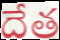
దేత